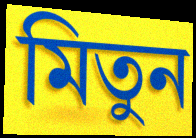
মিতুন